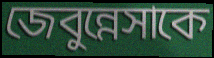
জেবুন্নেসাকে